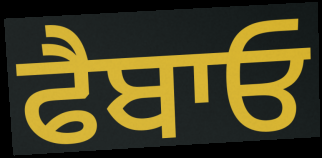
ਫੈਬਾਓ